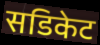
सडिकेट